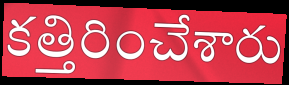
కత్తిరించేశారు